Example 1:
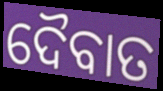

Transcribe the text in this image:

ଦୈବାତ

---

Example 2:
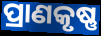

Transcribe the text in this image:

ପ୍ରାଣକୃଷ୍ଣ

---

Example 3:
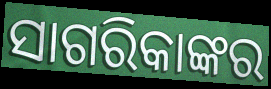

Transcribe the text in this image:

ସାଗରିକାଙ୍କର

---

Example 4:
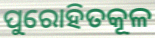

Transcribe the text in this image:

ପୁରୋହିତକୂଳ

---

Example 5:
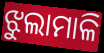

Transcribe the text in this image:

ଝୁଲାମାଳି